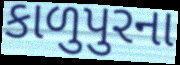
કાળુપુરના